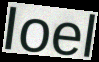
Ioel